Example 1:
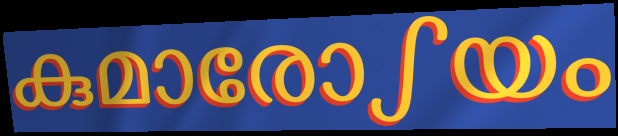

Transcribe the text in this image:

കുമാരോഽയം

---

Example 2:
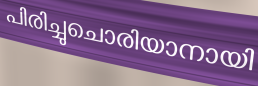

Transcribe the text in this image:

പിരിച്ചുചൊരിയാനായി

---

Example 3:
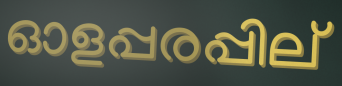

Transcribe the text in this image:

ഓളപ്പരപ്പില്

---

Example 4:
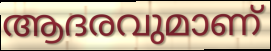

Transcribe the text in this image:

ആദരവുമാണ്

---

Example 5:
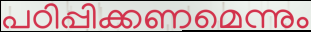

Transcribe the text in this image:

പഠിപ്പിക്കണമെന്നും